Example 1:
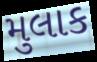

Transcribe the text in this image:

મુલાક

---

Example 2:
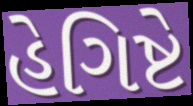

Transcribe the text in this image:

હેગિષ્ટે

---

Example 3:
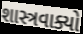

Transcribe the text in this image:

શાસ્ત્રવાક્યો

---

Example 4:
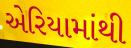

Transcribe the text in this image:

એરિયામાંથી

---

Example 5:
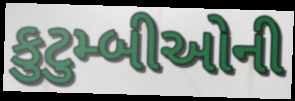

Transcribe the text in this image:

કુટુમ્બીઓની